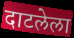
दाटलेला